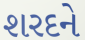
શરદને